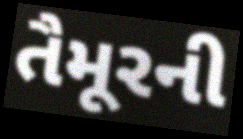
તૈમૂરની